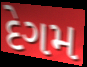
દેગમ